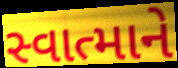
સ્વાત્માને